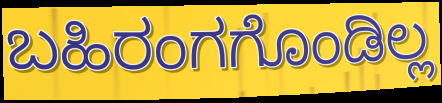
ಬಹಿರಂಗಗೊಂಡಿಲ್ಲ